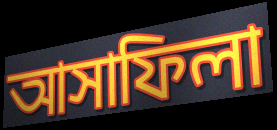
আসাফিলা